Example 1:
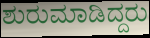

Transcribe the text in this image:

ಶುರುಮಾಡಿದ್ದರು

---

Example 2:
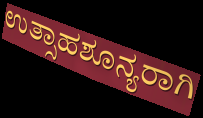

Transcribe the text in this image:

ಉತ್ಸಾಹಶೂನ್ಯರಾಗಿ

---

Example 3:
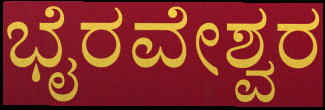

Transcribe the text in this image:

ಭೈರವೇಶ್ವರ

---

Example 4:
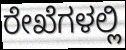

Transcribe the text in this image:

ರೇಖೆಗಳಲ್ಲಿ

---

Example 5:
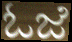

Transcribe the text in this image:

ಓಜೆ